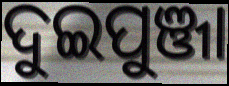
ଦୁଇପୁଞ୍ଜା